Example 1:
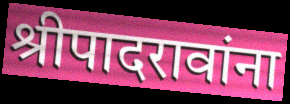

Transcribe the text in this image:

श्रीपादरावांना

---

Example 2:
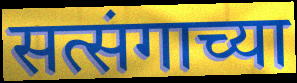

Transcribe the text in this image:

सत्संगाच्या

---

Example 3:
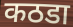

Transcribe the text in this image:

कठडा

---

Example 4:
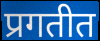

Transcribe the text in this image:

प्रगतीत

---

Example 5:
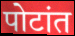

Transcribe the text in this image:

पोटांत